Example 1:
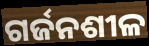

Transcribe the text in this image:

ଗର୍ଜନଶୀଳ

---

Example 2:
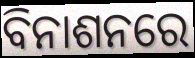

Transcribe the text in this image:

ବିନାଶନରେ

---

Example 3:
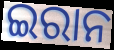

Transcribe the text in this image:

ଇରାନ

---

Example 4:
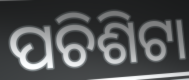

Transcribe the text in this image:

ପଚିଶିଟା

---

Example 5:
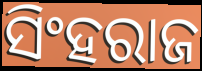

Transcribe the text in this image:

ସିଂହରାଜ